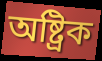
অষ্ট্ৰিক